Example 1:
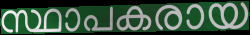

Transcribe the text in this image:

സ്ഥാപകരായ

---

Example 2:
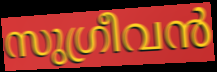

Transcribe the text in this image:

സുഗ്രീവൻ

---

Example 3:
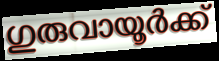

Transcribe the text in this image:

ഗുരുവായൂർക്ക്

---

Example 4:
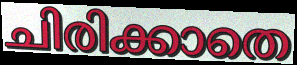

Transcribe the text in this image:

ചിരിക്കാതെ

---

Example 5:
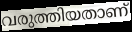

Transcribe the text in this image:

വരുത്തിയതാണ്